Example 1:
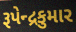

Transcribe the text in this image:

રૂપેન્દ્રકુમાર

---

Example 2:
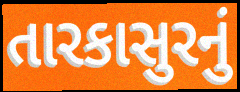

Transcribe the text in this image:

તારકાસુરનું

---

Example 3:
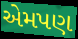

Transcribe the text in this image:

એમપણ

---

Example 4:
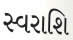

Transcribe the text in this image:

સ્વરાશિ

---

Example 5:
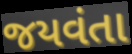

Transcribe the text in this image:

જયવંતા